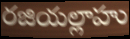
రజియల్లాహు